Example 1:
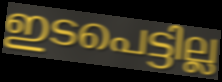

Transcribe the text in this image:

ഇടപെട്ടില്ല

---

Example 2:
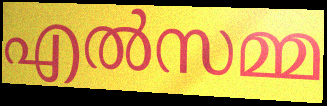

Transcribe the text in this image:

എൽസമ്മ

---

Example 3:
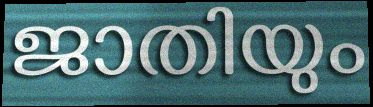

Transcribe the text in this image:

ജാതിയും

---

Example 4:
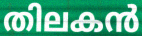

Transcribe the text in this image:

തിലകൻ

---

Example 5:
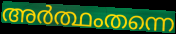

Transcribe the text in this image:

അർത്ഥംതന്നെ